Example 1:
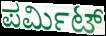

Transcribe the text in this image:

ಪರ್ಮಿಟ್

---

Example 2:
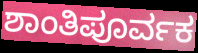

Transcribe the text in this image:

ಶಾಂತಿಪೂರ್ವಕ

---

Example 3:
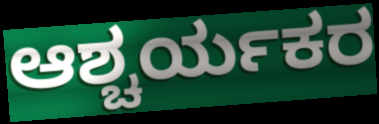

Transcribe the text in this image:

ಆಶ್ಚರ್ಯಕರ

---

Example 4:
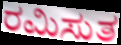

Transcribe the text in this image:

ರಮಿಸುತ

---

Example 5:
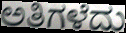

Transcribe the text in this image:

ಅತಿಗಳೆದು